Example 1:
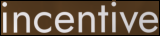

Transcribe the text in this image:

incentive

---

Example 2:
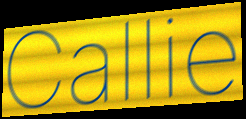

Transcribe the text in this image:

Callie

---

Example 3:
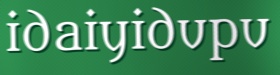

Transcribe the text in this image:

idaiyidupu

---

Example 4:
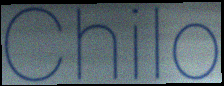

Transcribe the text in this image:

Chilo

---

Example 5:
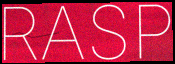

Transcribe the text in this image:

RASP